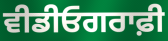
ਵੀਡੀਓਗਰਾਫ਼ੀ